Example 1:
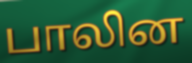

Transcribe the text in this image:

பாலின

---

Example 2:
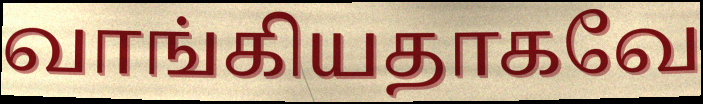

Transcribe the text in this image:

வாங்கியதாகவே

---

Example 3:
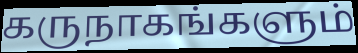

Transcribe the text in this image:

கருநாகங்களும்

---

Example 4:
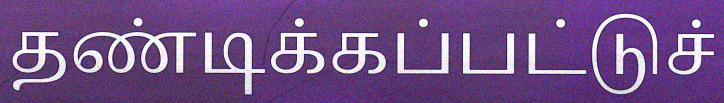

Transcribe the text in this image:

தண்டிக்கப்பட்டுச்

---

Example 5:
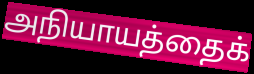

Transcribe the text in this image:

அநியாயத்தைக்